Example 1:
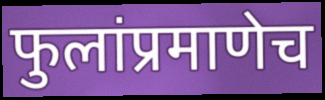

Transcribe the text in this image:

फुलांप्रमाणेच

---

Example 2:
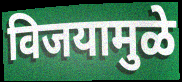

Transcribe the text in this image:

विजयामुळे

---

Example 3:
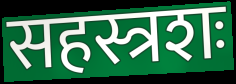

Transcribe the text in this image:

सहस्त्रशः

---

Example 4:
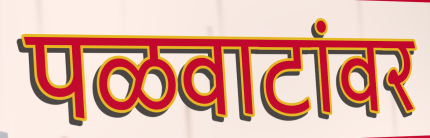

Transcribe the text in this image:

पळवाटांवर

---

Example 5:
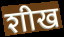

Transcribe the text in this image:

शीख